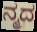
ನ್ಮದ